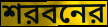
শরবনের